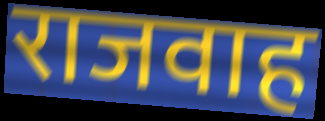
राजवाह